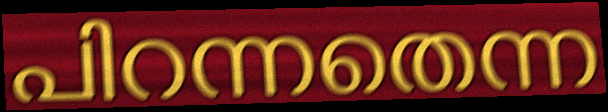
പിറന്നതെന്ന